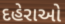
દહેરાઓ